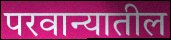
परवान्यातील